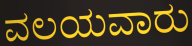
ವಲಯವಾರು